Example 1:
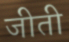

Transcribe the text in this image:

जीती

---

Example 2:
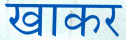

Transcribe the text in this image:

खाकर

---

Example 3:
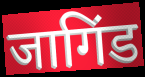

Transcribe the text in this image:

जागिंड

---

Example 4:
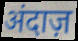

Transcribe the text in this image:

अंदाज़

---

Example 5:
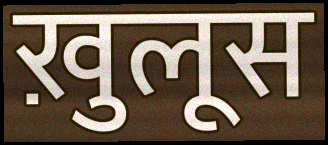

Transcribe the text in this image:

ख़ुलूस